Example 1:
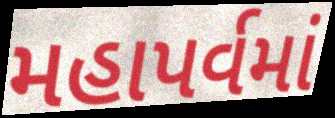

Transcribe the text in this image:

મહાપર્વમાં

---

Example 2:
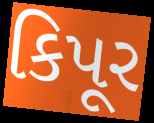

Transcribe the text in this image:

કિપૂર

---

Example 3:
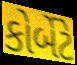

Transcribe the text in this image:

કોર્બેટે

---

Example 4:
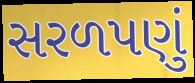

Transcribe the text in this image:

સરળપણું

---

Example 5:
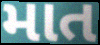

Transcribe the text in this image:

માત